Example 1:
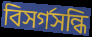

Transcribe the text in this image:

বিসর্গসন্ধি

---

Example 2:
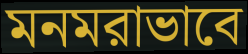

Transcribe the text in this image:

মনমরাভাবে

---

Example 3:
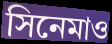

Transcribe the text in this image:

সিনেমাও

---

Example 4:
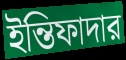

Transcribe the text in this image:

ইন্তিফাদার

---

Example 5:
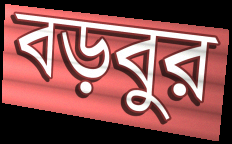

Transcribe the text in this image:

বড়বুর